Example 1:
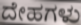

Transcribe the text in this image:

ದೇಹಗಳು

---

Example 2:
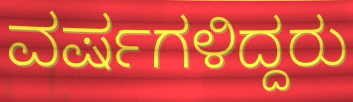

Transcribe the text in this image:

ವರ್ಷಗಳಿದ್ದರು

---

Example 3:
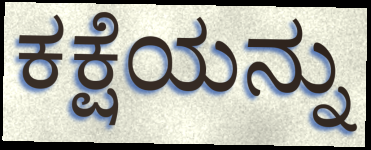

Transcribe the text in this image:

ಕಕ್ಷೆಯನ್ನು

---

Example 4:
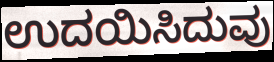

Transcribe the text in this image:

ಉದಯಿಸಿದುವು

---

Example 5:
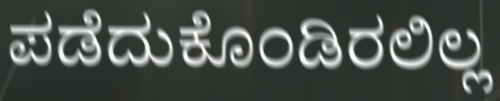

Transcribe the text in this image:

ಪಡೆದುಕೊಂಡಿರಲಿಲ್ಲ